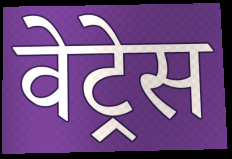
वेट्रेस